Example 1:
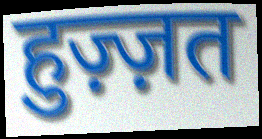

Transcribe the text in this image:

हुज़्ज़त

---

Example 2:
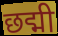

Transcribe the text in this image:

छद्मी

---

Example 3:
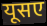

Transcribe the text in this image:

यूसए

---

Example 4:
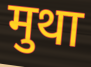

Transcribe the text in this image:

मुथा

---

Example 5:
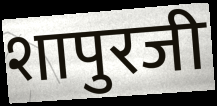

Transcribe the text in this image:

शापुरजी